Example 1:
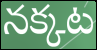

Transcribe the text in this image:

నక్కట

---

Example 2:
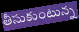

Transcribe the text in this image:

తీసుకుంటున్న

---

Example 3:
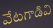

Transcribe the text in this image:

వేటగాడివి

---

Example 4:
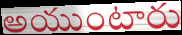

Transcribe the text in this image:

అయుంటారు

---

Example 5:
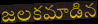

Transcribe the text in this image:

జలకమాడిన